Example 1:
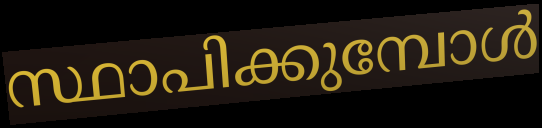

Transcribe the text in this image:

സ്ഥാപിക്കുമ്പോൾ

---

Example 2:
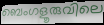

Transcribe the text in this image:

ബെംഗളൂരുവിലെ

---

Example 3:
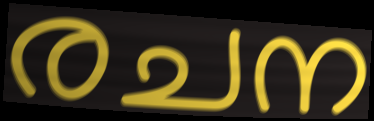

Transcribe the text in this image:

രചന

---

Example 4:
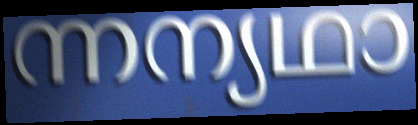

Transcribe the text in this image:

ന്നന്യഥാ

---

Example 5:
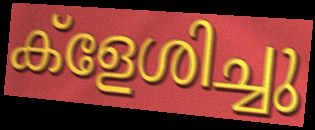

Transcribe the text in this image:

ക്ളേശിച്ചു